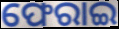
ଫେରାଇ